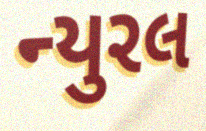
ન્યુરલ